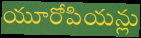
యూరోపియన్లు